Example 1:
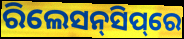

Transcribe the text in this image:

ରିଲେସନ୍‌ସିପ୍‌ରେ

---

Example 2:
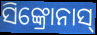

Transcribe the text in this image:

ସିଙ୍କ୍ରୋନାସ୍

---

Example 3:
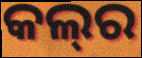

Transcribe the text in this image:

କଲ୍‌ର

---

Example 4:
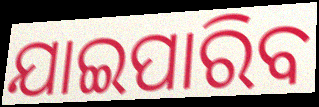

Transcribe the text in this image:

ଯାଇପାରିବ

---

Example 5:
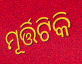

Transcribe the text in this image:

ମୂର୍ତ୍ତିଟିକି